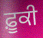
ਫ਼ੂਕੀ